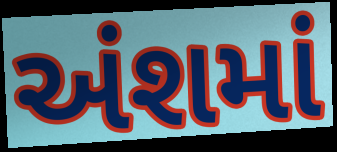
અંશમાં